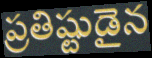
ప్రతిష్టుడైన